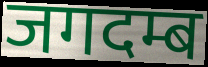
जगदम्ब